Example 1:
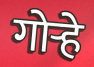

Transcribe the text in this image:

गोऱ्हे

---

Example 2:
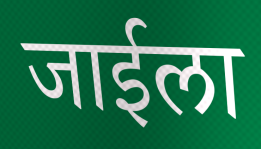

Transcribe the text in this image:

जाईला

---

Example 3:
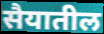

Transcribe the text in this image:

सैयातील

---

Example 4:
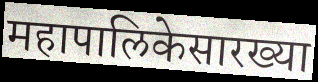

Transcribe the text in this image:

महापालिकेसारख्या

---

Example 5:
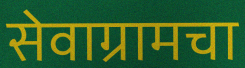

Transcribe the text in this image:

सेवाग्रामचा